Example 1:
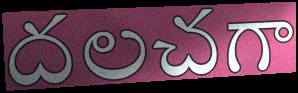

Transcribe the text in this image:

దలచగా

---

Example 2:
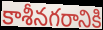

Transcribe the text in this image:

కాశీనగరానికి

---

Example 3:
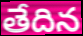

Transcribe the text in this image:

తేదిన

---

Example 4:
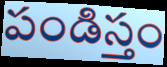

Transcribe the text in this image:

పండిస్తం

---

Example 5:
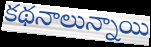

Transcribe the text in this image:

కథనాలున్నాయి